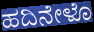
ಹದಿನೇಳೊ